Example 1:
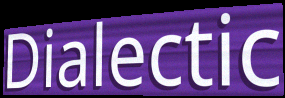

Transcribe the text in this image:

Dialectic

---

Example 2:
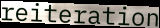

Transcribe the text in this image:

reiteration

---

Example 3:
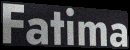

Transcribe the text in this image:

Fatima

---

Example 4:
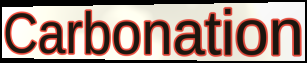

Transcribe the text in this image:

Carbonation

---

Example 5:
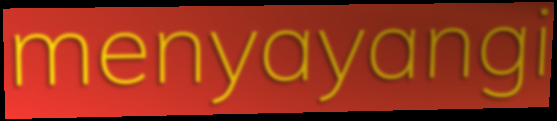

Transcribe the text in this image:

menyayangi